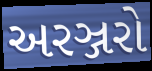
અરઞ્જરો